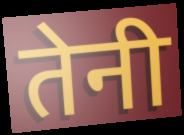
तेनी